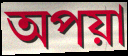
অপয়া